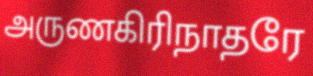
அருணகிரிநாதரே